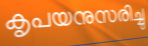
കൃപയനുസരിച്ചു